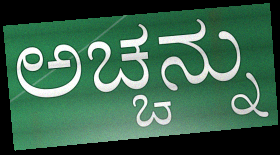
ಅಚ್ಚನ್ನು